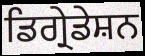
ਡਿਗ੍ਰੇਡੇਸ਼ਨ